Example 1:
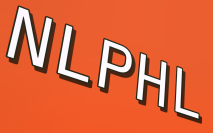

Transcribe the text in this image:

NLPHL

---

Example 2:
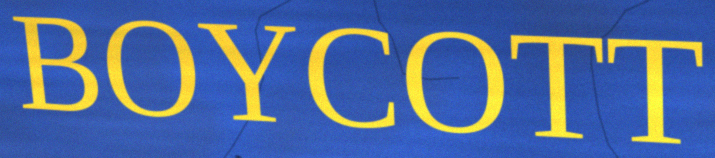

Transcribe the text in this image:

BOYCOTT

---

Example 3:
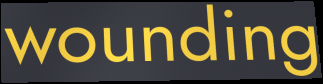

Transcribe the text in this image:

wounding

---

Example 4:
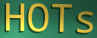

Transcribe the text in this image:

HOTs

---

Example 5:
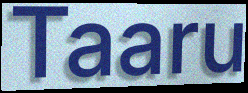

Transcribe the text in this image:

Taaru